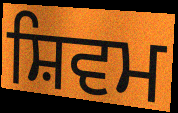
ਸ਼ਿਵਮ